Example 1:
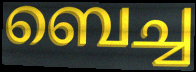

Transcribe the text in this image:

ബെച്ച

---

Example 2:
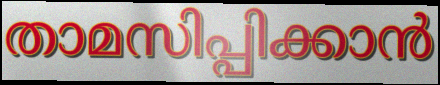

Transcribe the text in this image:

താമസിപ്പിക്കാൻ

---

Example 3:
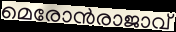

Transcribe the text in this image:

മെരോൻരാജാവ്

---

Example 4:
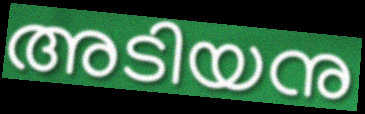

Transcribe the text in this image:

അടിയനു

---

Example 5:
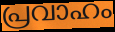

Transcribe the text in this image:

പ്രവാഹം